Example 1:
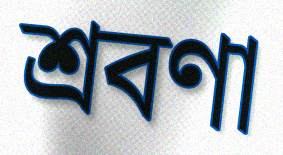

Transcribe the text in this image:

শ্রবণা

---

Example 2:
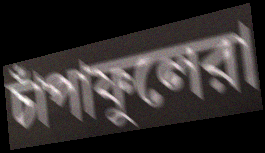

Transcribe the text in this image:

চাঁপাফুলেরা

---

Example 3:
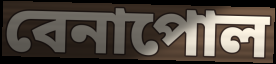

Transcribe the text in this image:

বেনাপোল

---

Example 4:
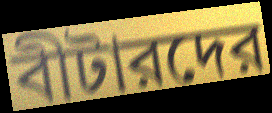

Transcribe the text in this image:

বীটারদের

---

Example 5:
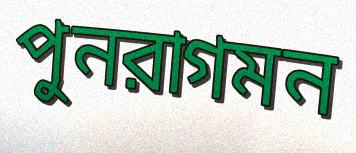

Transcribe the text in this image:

পুনরাগমন